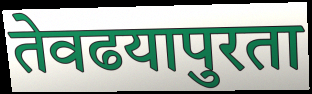
तेवढयापुरता